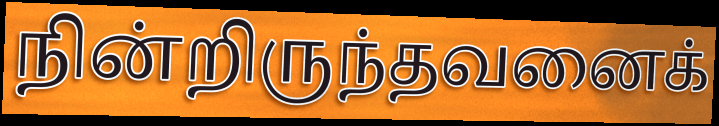
நின்றிருந்தவனைக்